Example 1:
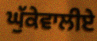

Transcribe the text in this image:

ਘੁੱਕੇਵਾਲੀਏ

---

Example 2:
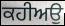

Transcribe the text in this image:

ਕਹੀਅਉ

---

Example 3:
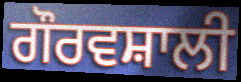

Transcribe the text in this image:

ਗੌਰਵਸ਼ਾਲੀ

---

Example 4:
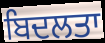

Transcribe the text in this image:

ਬਿਦਲਤਾ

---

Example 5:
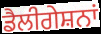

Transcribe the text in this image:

ਡੈਲੀਗੇਸ਼ਨਾਂ